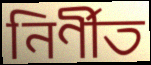
নির্ণীত